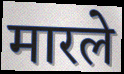
मारले